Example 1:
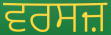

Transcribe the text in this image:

ਵਰਸਜ਼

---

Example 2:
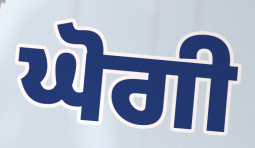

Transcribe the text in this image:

ਘੋਗੀ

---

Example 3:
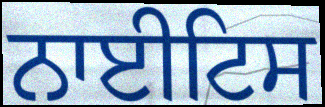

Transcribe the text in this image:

ਨਾਈਟਿਸ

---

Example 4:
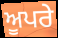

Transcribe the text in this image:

ਅੂਪਰੇ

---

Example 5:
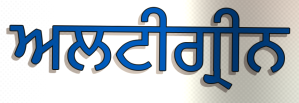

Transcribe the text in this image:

ਅਲਟੀਗ੍ਰੀਨ